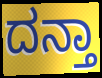
ದನ್ತಾ